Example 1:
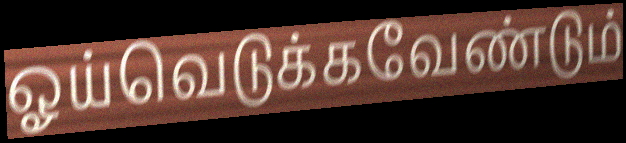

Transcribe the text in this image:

ஓய்வெடுக்கவேண்டும்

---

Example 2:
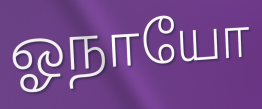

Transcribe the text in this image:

ஓநாயோ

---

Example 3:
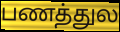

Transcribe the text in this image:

பணத்துல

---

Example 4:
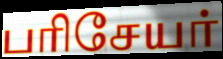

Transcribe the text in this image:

பரிசேயர்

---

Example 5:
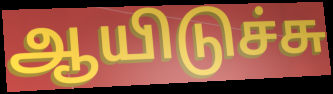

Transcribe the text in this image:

ஆயிடுச்சு